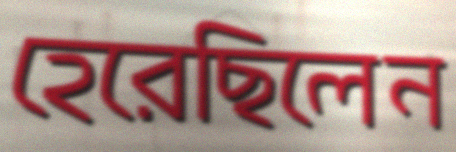
হেরেছিলেন